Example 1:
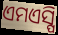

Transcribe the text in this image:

ଏମଏସ୍ପି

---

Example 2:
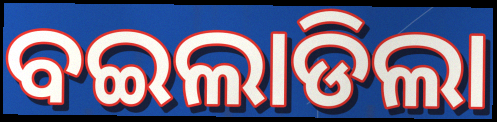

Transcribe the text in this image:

ବଇଲାଡିଲା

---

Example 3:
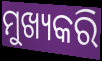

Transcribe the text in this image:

ମୁଖ୍ୟକରି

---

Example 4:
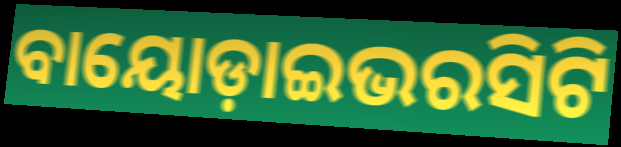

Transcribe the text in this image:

ବାୟୋଡ଼ାଇଭରସିଟି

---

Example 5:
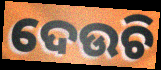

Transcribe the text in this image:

ଦେଉଚି